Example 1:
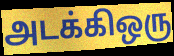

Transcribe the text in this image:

அடக்கிஒரு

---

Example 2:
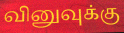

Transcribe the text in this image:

வினுவுக்கு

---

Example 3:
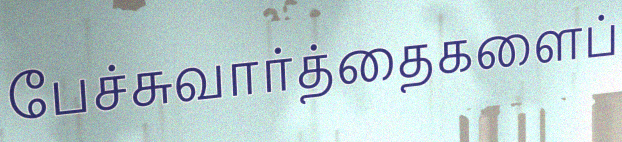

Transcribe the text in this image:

பேச்சுவார்த்தைகளைப்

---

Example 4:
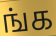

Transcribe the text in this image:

ங்க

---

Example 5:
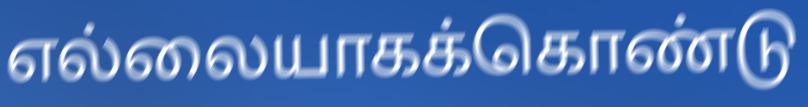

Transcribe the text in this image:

எல்லையாகக்கொண்டு